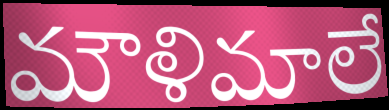
మౌళిమాలే